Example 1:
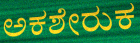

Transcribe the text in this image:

ಅಕಶೇರುಕ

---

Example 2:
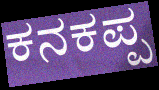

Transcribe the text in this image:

ಕನಕಪ್ಪ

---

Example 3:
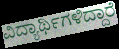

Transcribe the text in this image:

ವಿದ್ಯಾರ್ಥಿಗಳಿದ್ದಾರೆ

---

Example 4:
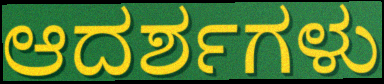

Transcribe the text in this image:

ಆದರ್ಶಗಳು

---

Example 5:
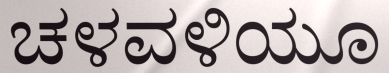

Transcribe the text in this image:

ಚಳವಳಿಯೂ